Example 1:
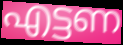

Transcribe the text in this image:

എട്ടണ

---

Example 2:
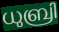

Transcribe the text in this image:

ധുബ്രി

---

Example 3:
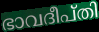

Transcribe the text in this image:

ഭാവദീപ്തി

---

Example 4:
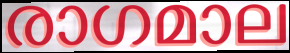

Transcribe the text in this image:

രാഗമാല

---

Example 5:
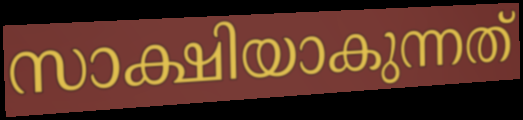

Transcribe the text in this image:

സാക്ഷിയാകുന്നത്